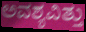
ಅವಶ್ಯವಿತ್ತು